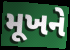
મૂખને